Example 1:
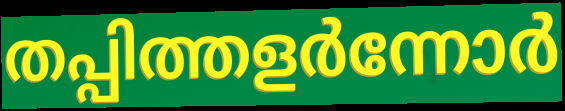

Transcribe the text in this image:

തപ്പിത്തളർന്നോർ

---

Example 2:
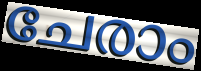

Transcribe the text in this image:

ചേരാം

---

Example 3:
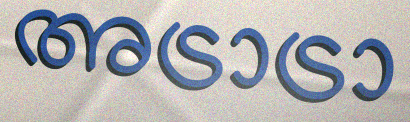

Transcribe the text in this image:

അട്രാട്രാ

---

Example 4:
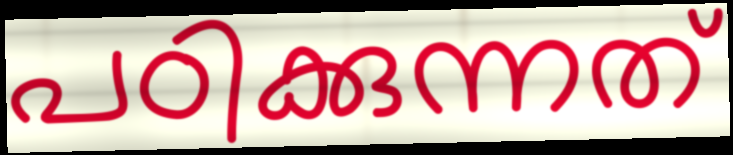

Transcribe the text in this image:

പഠിക്കുന്നത്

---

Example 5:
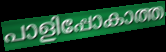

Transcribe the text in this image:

പാളിപ്പോകാത്ത